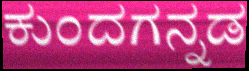
ಕುಂದಗನ್ನಡ